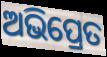
ଅଭିପ୍ରେତ